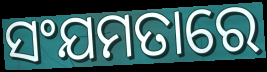
ସଂଯମତାରେ